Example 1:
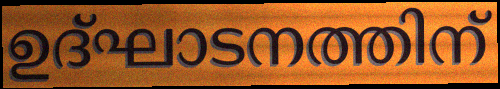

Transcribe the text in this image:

ഉദ്ഘാടനത്തിന്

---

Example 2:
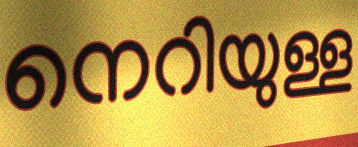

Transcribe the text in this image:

നെറിയുള്ള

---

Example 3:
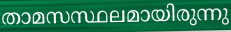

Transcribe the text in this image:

താമസസ്ഥലമായിരുന്നു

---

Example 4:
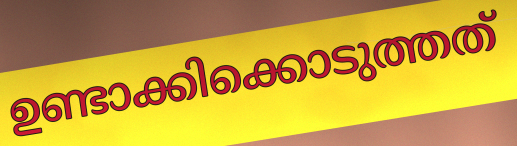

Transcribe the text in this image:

ഉണ്ടാക്കിക്കൊടുത്തത്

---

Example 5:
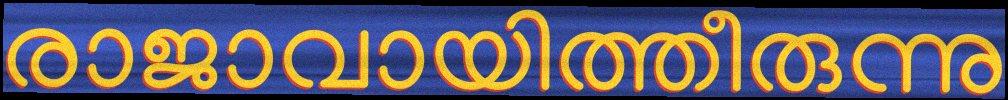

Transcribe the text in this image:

രാജാവായിത്തീരുന്നു